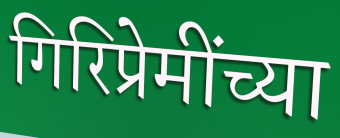
गिरिप्रेमींच्या